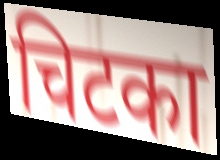
चिटका